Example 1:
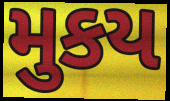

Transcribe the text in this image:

મુકય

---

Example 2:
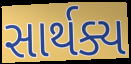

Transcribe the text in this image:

સાર્થક્ય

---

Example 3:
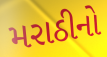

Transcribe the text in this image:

મરાઠીનો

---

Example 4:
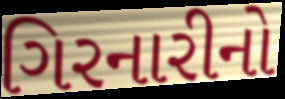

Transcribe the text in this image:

ગિરનારીનો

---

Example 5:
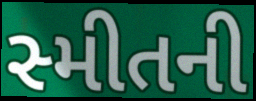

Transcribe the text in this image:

સ્મીતની